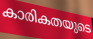
കാരികതയുടെ